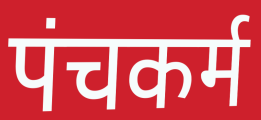
पंचकर्म